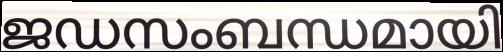
ജഡസംബന്ധമായി